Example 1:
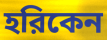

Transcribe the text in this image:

হরিকেন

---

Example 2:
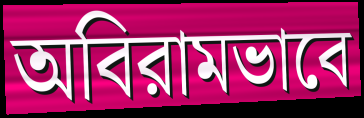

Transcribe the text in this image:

অবিরামভাবে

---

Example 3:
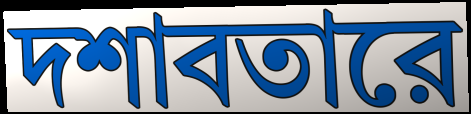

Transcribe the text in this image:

দশাবতারে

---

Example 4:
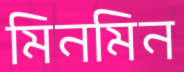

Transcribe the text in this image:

মিনমিন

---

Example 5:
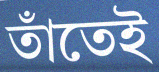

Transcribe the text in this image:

তাঁতেই